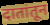
दातांतून